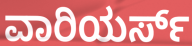
ವಾರಿಯರ್ಸ್